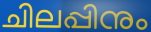
ചിലപ്പിനും